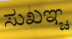
ಸುಖಞ್ಚ